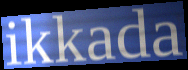
ikkada